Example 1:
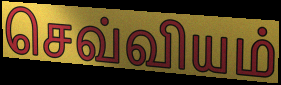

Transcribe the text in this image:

செவ்வியம்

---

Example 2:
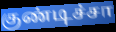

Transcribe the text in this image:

குண்டிச்சா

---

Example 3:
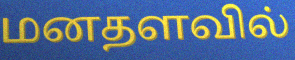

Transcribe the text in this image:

மனதளவில்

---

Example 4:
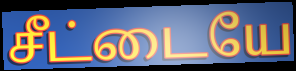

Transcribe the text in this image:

சீட்டையே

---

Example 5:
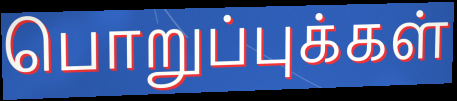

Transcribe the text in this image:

பொறுப்புக்கள்